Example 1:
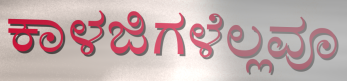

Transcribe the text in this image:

ಕಾಳಜಿಗಳೆಲ್ಲವೂ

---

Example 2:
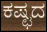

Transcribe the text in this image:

ಕಷ್ಟದ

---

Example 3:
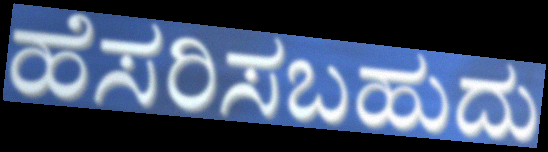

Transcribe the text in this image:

ಹೆಸರಿಸಬಹುದು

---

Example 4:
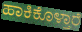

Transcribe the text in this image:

ಹಾಕಿಕೊಳ್ತಾರೆ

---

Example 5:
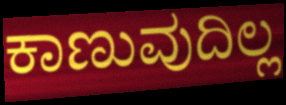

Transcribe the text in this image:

ಕಾಣುವುದಿಲ್ಲ